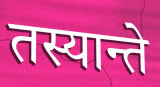
तस्यान्ते